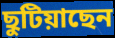
ছুটিয়াছেন